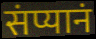
संप्यानं